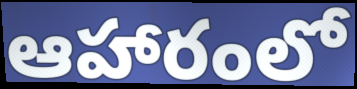
ఆహారంలో